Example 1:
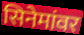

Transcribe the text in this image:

सिनेमांवर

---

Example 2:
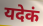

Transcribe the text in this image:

यदेकं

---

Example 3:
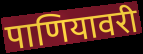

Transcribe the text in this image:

पाणियावरी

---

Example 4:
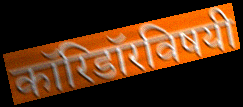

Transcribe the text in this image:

कॉरिडॉरविषयी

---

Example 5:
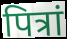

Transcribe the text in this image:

पित्रां